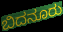
ಬಿದನೂರು